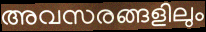
അവസരങ്ങളിലും